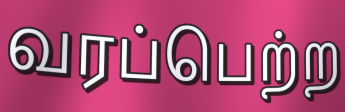
வரப்பெற்ற